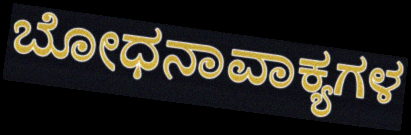
ಬೋಧನಾವಾಕ್ಯಗಳ